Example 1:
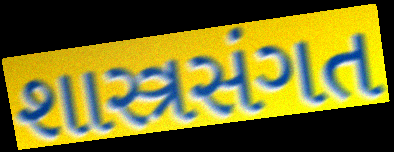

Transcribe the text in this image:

શાસ્ત્રસંગત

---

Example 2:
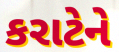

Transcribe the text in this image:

કરાટેને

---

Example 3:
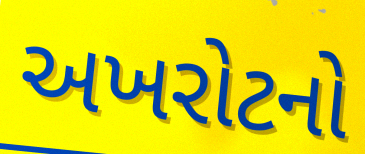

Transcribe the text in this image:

અખરોટનો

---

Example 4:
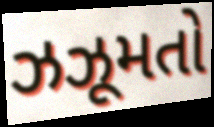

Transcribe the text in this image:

ઝઝૂમતો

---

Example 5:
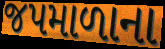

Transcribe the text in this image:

જપમાળાના